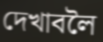
দেখাবলৈ